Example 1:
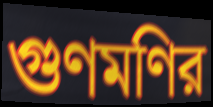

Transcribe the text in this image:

গুণমণির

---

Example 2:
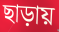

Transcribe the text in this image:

ছাড়ায়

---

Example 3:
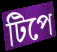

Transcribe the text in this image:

টিপে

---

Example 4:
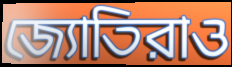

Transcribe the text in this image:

জ্যোতিরাও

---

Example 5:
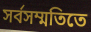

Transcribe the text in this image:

সর্বসম্মতিতে